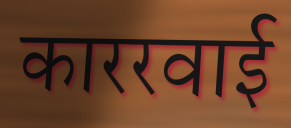
काररवाई